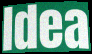
Idea